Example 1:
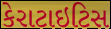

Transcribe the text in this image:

કેરાટાઇટિસ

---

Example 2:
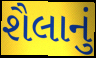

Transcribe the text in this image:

શૈલાનું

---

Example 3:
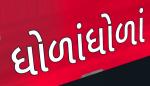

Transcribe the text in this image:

ધોળાંધોળાં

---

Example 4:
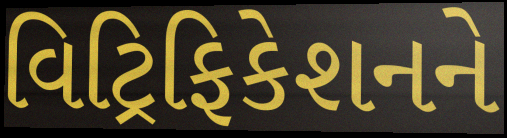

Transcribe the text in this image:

વિટ્રિફિકેશનને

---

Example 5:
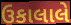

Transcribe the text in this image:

ઉકાલાલે